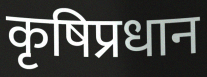
कृषिप्रधान